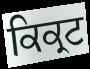
ਕਿਕ੍ਰਟ